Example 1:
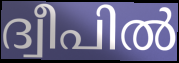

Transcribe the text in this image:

ദ്വീപിൽ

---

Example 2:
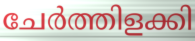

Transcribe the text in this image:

ചേർത്തിളക്കി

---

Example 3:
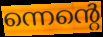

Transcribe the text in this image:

ന്നെന്റെ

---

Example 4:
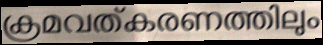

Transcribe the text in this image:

ക്രമവത്കരണത്തിലും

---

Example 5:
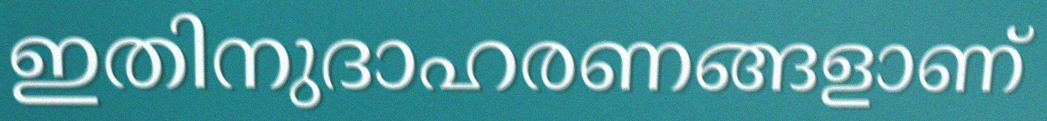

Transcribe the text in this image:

ഇതിനുദാഹരണങ്ങളാണ്